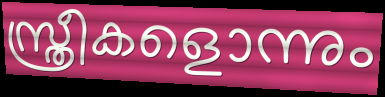
സ്ത്രീകളൊന്നും